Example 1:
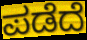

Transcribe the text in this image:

ಪಡೆದೆ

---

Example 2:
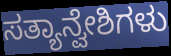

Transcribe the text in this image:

ಸತ್ಯಾನ್ವೇಶಿಗಳು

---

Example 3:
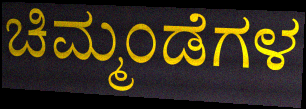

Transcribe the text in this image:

ಚಿಮ್ಮಂಡೆಗಳ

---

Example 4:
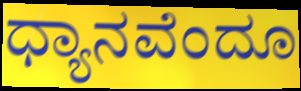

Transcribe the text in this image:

ಧ್ಯಾನವೆಂದೂ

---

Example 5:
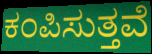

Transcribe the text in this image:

ಕಂಪಿಸುತ್ತವೆ